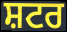
ਸ਼ਟਰ